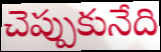
చెప్పుకునేది